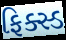
ફિક્સ્ડ